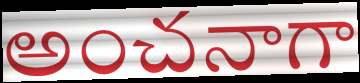
అంచనాగా